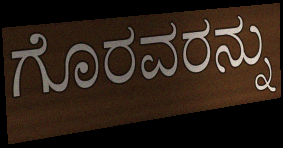
ಗೊರವರನ್ನು